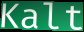
Kalt